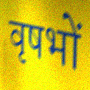
वृषभों